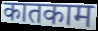
कातकाम